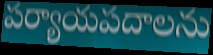
పర్యాయపదాలను